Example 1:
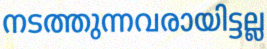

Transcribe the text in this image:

നടത്തുന്നവരായിട്ടല്ല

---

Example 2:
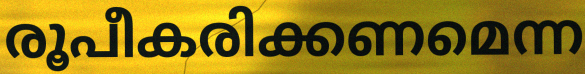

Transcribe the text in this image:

രൂപീകരിക്കണമെന്ന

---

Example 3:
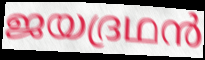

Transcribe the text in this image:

ജയദ്രഥൻ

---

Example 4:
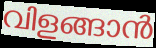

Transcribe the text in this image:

വിളങ്ങാൻ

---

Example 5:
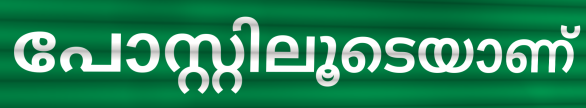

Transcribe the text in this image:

പോസ്റ്റിലൂടെയാണ്